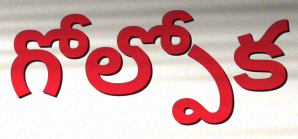
గోల్పోక